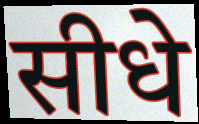
सीधे